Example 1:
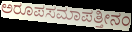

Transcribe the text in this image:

ಅರೂಪಸಮಾಪತ್ತೀನಂ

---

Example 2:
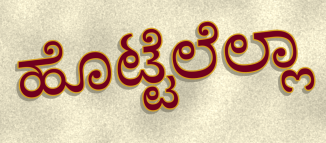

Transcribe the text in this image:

ಹೊಟ್ಟೆಲೆಲ್ಲಾ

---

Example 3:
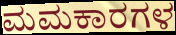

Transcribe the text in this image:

ಮಮಕಾರಗಳ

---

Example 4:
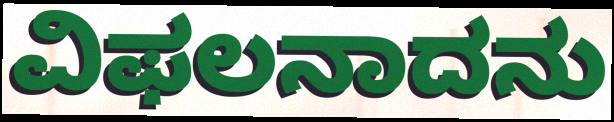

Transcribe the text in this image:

ವಿಫಲನಾದನು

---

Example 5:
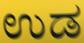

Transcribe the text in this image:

ಉಡ